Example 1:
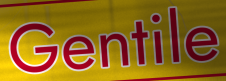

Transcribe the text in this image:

Gentile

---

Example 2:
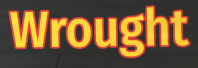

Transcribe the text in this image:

Wrought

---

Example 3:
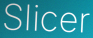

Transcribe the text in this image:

Slicer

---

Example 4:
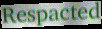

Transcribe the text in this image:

Respacted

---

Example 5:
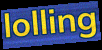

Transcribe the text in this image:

lolling